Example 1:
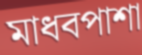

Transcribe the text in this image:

মাধবপাশা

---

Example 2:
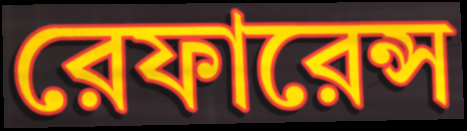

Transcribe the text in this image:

রেফারেন্স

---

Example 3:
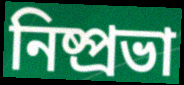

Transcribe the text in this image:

নিষ্প্রভা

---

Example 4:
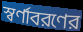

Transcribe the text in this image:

স্বর্ণাবরণের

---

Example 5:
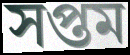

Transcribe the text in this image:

সপ্তম